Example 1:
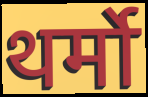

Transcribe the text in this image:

थर्मो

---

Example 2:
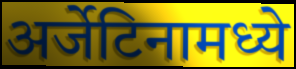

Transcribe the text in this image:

अर्जेटिनामध्ये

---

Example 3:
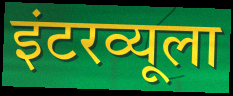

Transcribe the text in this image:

इंटरव्यूला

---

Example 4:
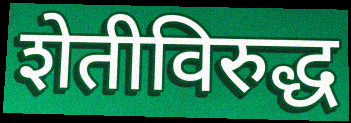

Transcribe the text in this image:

शेतीविरुद्ध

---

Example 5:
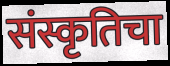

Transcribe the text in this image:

संस्कृतिचा